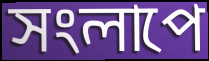
সংলাপে